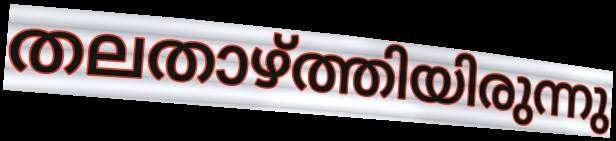
തലതാഴ്ത്തിയിരുന്നു